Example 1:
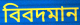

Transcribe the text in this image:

বিবদমান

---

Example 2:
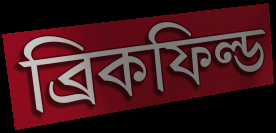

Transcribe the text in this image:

ব্রিকফিল্ড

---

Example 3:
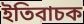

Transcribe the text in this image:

ইতিবাচক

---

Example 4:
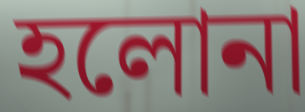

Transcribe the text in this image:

হলোনা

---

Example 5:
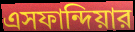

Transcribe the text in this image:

এসফান্দিয়ার